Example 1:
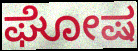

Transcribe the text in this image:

ಘೋಷ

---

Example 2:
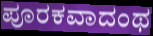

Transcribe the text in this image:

ಪೂರಕವಾದಂಥ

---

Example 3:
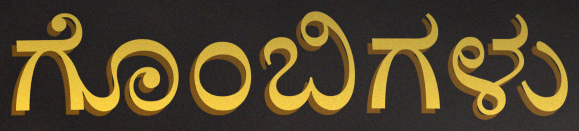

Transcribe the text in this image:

ಗೊಂಬಿಗಳು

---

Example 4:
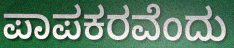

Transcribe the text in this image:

ಪಾಪಕರವೆಂದು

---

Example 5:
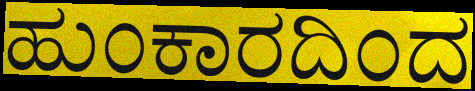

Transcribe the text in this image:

ಹುಂಕಾರದಿಂದ